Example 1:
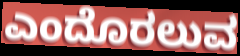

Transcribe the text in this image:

ಎಂದೊರಲುವ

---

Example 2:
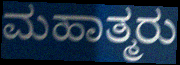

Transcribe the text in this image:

ಮಹಾತ್ಮರು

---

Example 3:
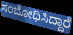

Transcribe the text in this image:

ಸಂಬೋಧಿಸಿದ್ದಾರೆ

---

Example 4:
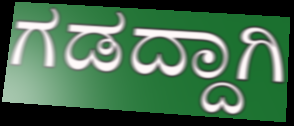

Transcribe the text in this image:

ಗಡದ್ದಾಗಿ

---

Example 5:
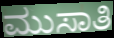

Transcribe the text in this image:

ಮುಸಾತಿ